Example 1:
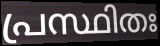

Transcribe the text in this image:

പ്രസ്ഥിതഃ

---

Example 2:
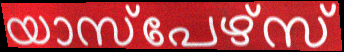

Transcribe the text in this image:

യാസ്പേഴ്സ്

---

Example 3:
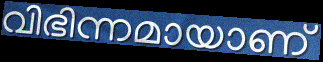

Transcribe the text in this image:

വിഭിന്നമായാണ്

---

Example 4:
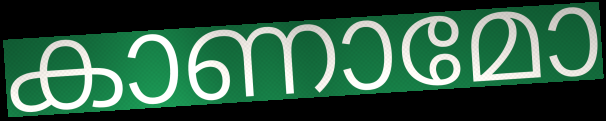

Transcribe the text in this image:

കാണാമോ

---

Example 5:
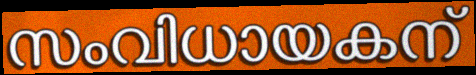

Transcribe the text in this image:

സംവിധായകന്